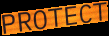
PROTECT